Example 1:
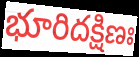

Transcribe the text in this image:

భూరిదక్షిణః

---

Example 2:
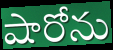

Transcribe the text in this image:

షారోను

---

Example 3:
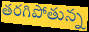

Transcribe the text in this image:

తరగిపోతున్న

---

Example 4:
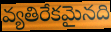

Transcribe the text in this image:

వ్యతిరేకమైనది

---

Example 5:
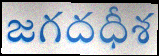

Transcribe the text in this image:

జగదధీశ